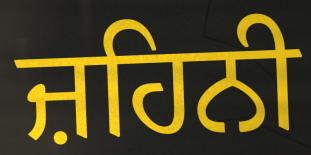
ਜ਼ਹਿਨੀ